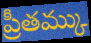
ప్రీతమ్కు